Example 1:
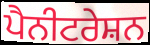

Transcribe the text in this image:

ਪੈਨੀਟਰੇਸ਼ਨ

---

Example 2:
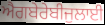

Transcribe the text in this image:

ਐਗਬੇਰੇਬੀਜੁਲਾਈ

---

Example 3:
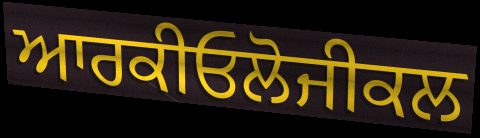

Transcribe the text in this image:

ਆਰਕੀਓਲੋਜੀਕਲ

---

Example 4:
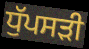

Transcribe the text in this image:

ਧੁੱਪਸੜੀ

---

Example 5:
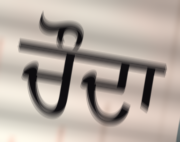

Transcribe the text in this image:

ਚੌਦਾ